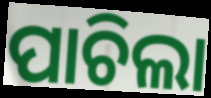
ପାଚିଲା